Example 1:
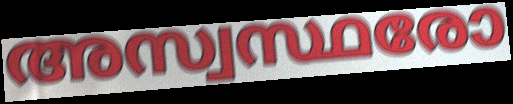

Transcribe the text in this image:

അസ്വസ്ഥരോ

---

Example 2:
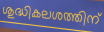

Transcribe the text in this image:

ശുദ്ധികലശത്തിന്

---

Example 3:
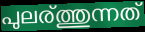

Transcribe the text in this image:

പുലര്ത്തുന്നത്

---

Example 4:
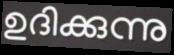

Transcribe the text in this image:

ഉദിക്കുന്നു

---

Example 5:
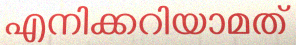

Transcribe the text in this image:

എനിക്കറിയാമത്